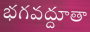
భగవద్దూతా